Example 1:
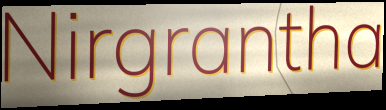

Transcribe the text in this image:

Nirgrantha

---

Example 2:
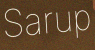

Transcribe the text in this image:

Sarup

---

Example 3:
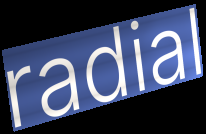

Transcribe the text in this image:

radial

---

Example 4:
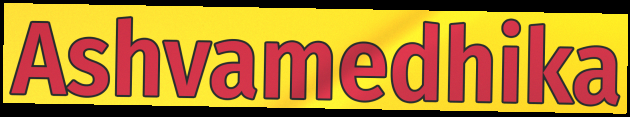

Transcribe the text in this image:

Ashvamedhika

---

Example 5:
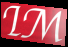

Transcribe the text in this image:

IM